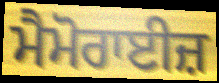
ਮੈਮੋਰਾਈਜ਼